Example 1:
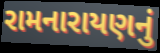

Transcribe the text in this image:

રામનારાયણનું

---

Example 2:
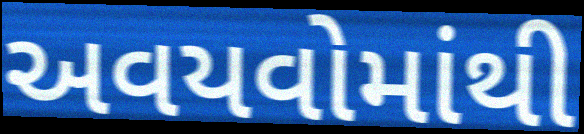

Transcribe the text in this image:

અવયવોમાંથી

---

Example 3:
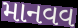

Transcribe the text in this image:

માનવવ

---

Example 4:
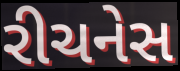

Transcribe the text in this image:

રીચનેસ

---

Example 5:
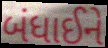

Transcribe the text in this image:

બંધાઈને